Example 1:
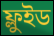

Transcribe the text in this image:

ফ্লুইড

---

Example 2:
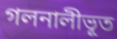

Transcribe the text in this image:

গলনালীভূত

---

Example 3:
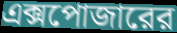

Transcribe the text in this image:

এক্সপোজারের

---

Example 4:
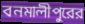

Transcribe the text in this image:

বনমালীপুরের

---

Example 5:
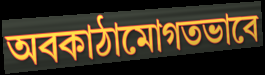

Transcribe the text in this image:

অবকাঠামোগতভাবে